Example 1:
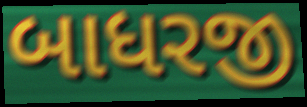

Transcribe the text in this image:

બાધરજી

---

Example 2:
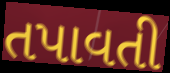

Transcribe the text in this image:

તપાવતી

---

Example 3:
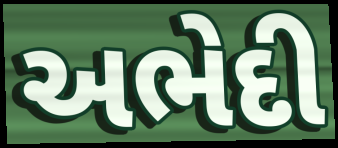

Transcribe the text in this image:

અભેદી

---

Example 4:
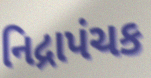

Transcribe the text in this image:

નિદ્રાપંચક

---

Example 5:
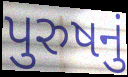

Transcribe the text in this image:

પુરુષનું